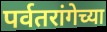
पर्वतरांगेच्या